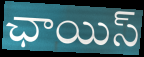
ఛాయిస్